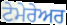
ਟੇਮੇਰੇਅਰ